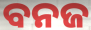
ବନଜ